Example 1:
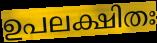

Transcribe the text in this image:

ഉപലക്ഷിതഃ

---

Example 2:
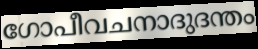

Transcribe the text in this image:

ഗോപീവചനാദുദന്തം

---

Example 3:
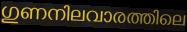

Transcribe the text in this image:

ഗുണനിലവാരത്തിലെ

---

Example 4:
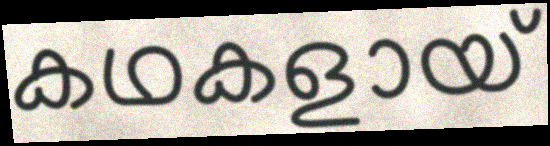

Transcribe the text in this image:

കഥകളായ്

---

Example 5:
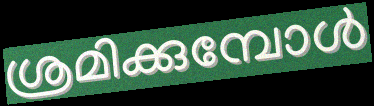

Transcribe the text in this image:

ശ്രമിക്കുമ്പോൾ